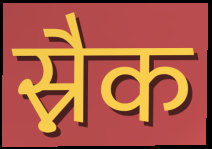
स्नैक